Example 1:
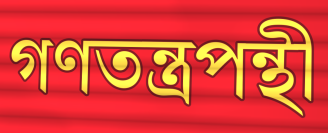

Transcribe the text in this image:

গণতন্ত্রপন্থী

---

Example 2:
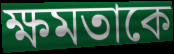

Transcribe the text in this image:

ক্ষমতাকে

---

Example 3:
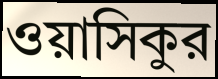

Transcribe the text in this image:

ওয়াসিকুর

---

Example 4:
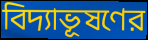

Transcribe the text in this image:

বিদ্যাভূষণের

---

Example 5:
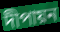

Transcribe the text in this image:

দীপায়ন